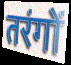
तरंगों